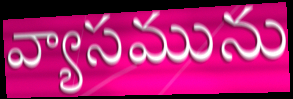
వ్యాసమును